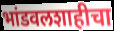
भांडवलशाहीचा